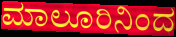
ಮಾಲೂರಿನಿಂದ